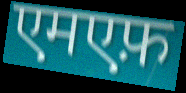
एमएफ़